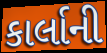
કાર્લાની